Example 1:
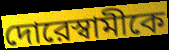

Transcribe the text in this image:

দোরেস্বামীকে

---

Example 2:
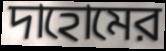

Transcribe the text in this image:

দাহোমের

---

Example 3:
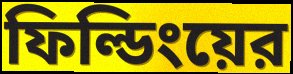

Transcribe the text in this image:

ফিল্ডিংয়ের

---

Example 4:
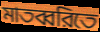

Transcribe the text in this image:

মাতব্বরিতে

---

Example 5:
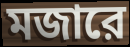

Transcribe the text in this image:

মজারে